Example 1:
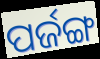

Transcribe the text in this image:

ପର୍ଜଙ୍ଗ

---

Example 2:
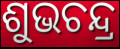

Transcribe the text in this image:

ଶୁଭଚନ୍ଦ୍ର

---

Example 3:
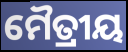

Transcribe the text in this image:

ମୈତ୍ରୀୟ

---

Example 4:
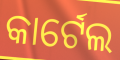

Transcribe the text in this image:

କାର୍ଟେଲ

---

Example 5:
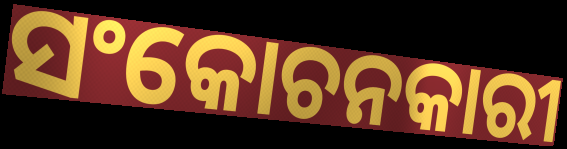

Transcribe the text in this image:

ସଂକୋଚନକାରୀ